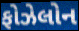
ફોઝેલોન